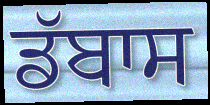
ਡੱਬਾਸ